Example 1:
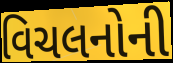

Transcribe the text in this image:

વિચલનોની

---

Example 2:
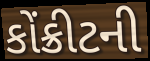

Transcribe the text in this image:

કોંક્રીટની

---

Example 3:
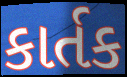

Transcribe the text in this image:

કાર્તક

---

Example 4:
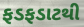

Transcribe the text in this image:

ફડફડાટથી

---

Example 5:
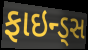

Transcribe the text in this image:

ફાઇન્ડ્સ